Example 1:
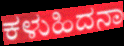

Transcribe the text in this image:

ಕಳುಹಿದನಾ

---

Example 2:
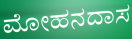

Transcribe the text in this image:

ಮೋಹನದಾಸ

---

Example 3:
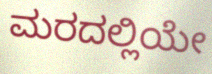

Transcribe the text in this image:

ಮರದಲ್ಲಿಯೇ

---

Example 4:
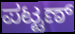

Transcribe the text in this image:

ಪಟ್ಟಣ್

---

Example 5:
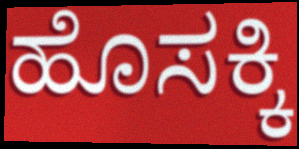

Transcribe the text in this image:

ಹೊಸಕ್ಕಿ